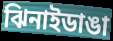
ঝিনাইডাঙা